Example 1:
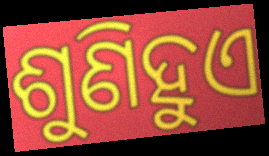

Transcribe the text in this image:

ଶୁଣିହୁଏ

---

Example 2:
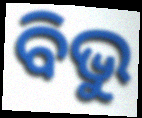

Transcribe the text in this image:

ବିଭୁ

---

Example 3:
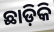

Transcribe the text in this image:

ଛାଡ଼ିକି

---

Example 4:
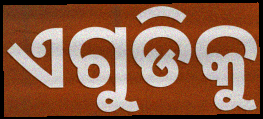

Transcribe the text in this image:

ଏଗୁଡିକୁ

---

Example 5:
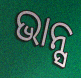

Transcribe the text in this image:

ଭାନ୍ସ